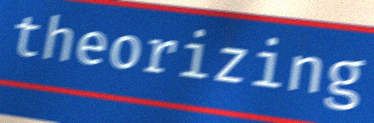
theorizing